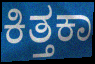
ಕಿತ್ತಕಾ